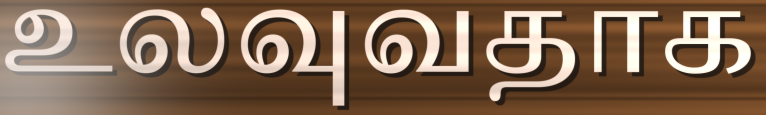
உலவுவதாக